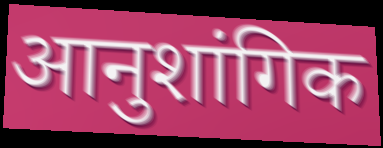
आनुशांगिक